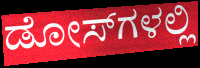
ಡೋಸ್‌ಗಳಲ್ಲಿ